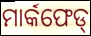
ମାର୍କଫେଡ୍